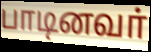
பாடினவர்